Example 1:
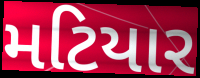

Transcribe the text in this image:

મટિયાર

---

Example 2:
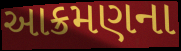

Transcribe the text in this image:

આક્રમણના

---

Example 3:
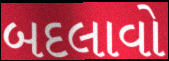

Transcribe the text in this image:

બદલાવો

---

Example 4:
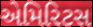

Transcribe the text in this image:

એમિરિટસ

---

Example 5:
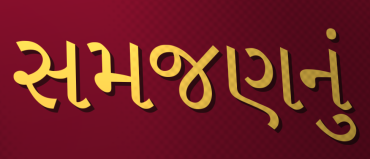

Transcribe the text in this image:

સમજણનું